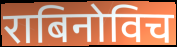
राबिनोविच